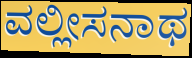
ವಲ್ಲೀಸನಾಥ